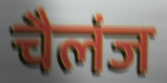
चैलंज